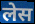
लेस